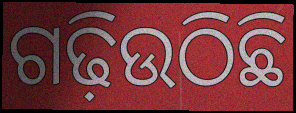
ଗଢ଼ିଉଠିଛି